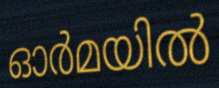
ഓർമയിൽ